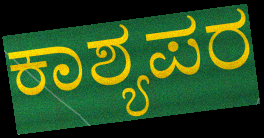
ಕಾಶ್ಯಪರ